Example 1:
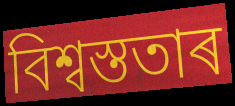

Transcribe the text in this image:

বিশ্বস্ততাৰ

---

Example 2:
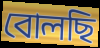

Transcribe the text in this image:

বোলছি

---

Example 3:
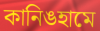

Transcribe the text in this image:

কানিঙহামে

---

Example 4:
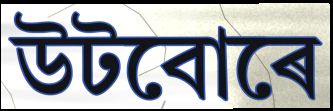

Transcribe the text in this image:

উটবোৰে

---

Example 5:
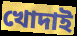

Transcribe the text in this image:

খোদাই